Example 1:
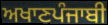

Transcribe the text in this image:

ਅਖਾਣਪੰਜਾਬੀ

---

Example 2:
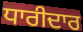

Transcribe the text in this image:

ਧਾਰੀਦਾਰ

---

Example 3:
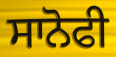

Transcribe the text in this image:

ਸਾਨੋਫੀ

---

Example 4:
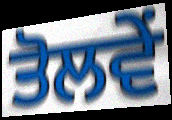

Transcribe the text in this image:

ਤੋਲਵੇਂ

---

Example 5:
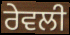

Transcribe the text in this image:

ਰੇਵਲੀ